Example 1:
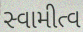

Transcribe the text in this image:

સ્વામીત્વ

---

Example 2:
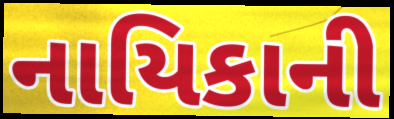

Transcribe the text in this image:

નાયિકાની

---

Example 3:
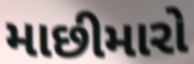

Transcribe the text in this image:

માછીમારો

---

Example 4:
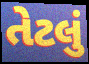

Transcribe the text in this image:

તેટલું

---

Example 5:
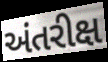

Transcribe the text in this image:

અંતરીક્ષ